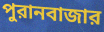
পুরানবাজার